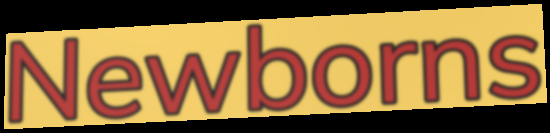
Newborns